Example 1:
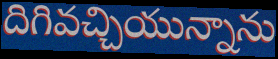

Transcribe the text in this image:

దిగివచ్చియున్నాను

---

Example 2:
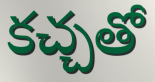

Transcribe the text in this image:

కచ్చతో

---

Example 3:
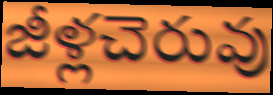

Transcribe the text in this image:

జీళ్లచెరువు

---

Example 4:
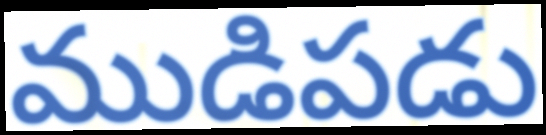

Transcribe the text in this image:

ముడిపడు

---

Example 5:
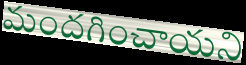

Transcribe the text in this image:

మందగించాయని